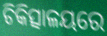
ଚିକିତ୍ସାଳୟରେ